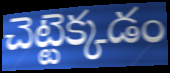
చెట్టెక్కడం